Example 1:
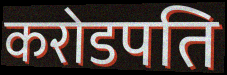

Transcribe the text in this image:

करोडपति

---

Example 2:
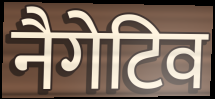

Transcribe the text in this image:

नैगेटिव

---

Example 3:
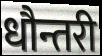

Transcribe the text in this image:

धौन्तरी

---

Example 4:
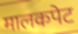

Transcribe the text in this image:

मालकपेट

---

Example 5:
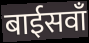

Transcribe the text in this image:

बाईसवाँ